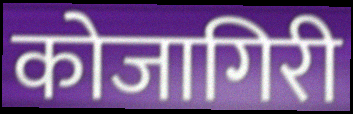
कोजागिरी